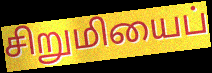
சிறுமியைப்